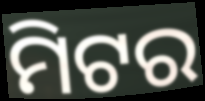
ମିଟର